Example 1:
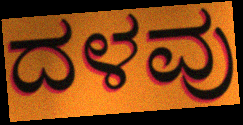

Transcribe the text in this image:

ದಳವು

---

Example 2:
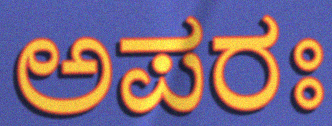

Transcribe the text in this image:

ಅಪರಃ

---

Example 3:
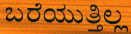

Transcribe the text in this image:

ಬರೆಯುತ್ತಿಲ್ಲ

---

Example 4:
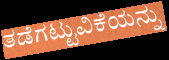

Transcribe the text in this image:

ತಡೆಗಟ್ಟುವಿಕೆಯನ್ನು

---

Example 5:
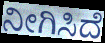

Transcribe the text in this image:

ನೀಗಿಸಿದೆ